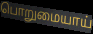
பொறுமையாய்